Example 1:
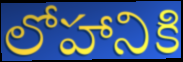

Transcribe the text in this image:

లోహానికి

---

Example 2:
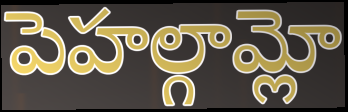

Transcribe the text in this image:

పెహల్గామ్లో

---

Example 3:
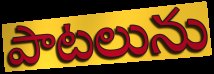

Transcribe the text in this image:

పాటలును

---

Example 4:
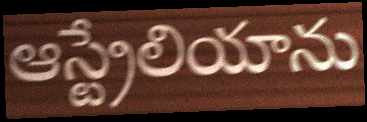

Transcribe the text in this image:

ఆస్ట్రేలియాను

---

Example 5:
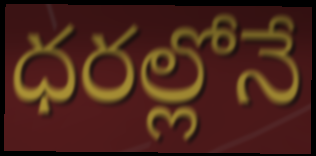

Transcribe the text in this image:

ధరల్లోనే